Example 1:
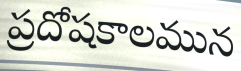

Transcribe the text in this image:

ప్రదోషకాలమున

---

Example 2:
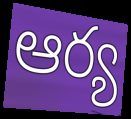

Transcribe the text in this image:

ఆర్య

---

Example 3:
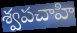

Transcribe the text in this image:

శ్వపచాహి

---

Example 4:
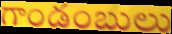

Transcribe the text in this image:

గాండంబులు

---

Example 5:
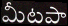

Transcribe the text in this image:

మీటపా